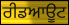
ਰੀਡਆਊਟ